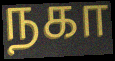
நகா